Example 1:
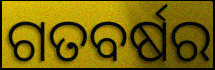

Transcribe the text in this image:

ଗତବର୍ଷର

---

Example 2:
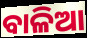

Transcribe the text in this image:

ବାଳିଆ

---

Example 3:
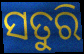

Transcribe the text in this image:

ସତୁରି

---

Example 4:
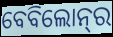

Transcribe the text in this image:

ବେବିଲୋନ୍‌ର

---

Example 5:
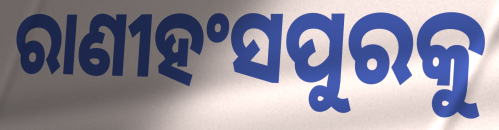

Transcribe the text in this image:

ରାଣୀହଂସପୁରକୁ